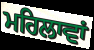
ਮਹਿਲਾਵਾਂ